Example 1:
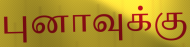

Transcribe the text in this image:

புனாவுக்கு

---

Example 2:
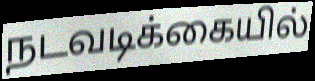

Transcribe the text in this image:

நடவடிக்கையில்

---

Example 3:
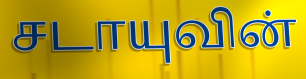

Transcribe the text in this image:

சடாயுவின்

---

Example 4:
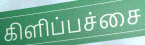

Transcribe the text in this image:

கிளிப்பச்சை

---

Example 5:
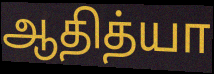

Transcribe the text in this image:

ஆதித்யா